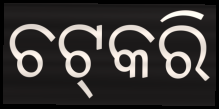
ଚଟ୍‌କରି